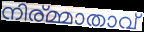
നിര്മ്മാതാവ്